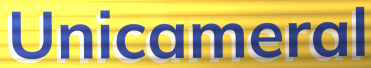
Unicameral